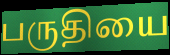
பருதியை